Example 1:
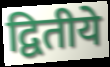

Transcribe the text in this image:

द्वितीये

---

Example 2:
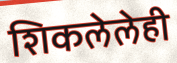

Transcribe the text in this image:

शिकलेलेही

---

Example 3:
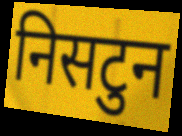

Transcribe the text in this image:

निसटुन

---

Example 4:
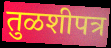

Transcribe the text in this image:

तुळशीपत्र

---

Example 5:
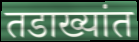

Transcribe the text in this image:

तडाख्यांत